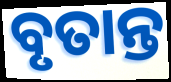
ବୃତାନ୍ତ